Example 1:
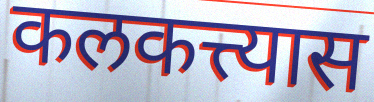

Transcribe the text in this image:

कलकत्त्यास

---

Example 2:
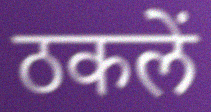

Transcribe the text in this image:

ठकलें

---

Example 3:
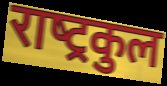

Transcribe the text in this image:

राष्ट्रकुल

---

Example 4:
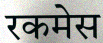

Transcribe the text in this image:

रकमेस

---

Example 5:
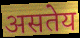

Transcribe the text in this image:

असतेय